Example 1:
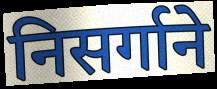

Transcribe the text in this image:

निसर्गाने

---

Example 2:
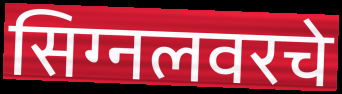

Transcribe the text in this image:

सिग्नलवरचे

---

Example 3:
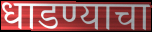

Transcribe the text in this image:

धाडण्याचा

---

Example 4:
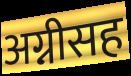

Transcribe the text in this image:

अग्नीसह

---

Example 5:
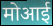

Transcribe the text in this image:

मोआई